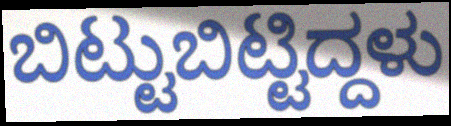
ಬಿಟ್ಟುಬಿಟ್ಟಿದ್ದಳು